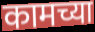
कामच्या